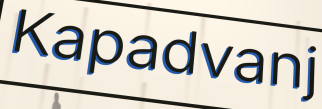
Kapadvanj